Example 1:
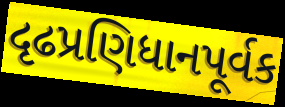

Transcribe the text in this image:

દૃઢપ્રણિધાનપૂર્વક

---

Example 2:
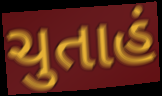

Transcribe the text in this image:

ચુતાહં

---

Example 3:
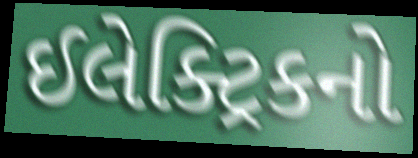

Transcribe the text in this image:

ઈલેક્ટ્રિકનો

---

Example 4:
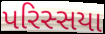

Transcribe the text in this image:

પરિસ્સયા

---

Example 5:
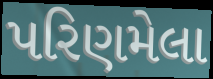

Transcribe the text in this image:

પરિણમેલા